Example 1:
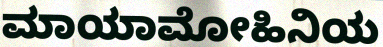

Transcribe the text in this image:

ಮಾಯಾಮೋಹಿನಿಯ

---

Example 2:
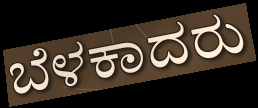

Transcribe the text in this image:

ಬೆಳಕಾದರು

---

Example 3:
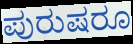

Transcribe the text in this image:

ಪುರುಷರೂ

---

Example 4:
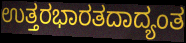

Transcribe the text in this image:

ಉತ್ತರಭಾರತದಾದ್ಯಂತ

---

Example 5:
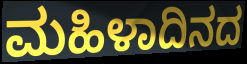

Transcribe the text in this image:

ಮಹಿಳಾದಿನದ